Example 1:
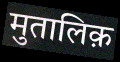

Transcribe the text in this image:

मुतालिक़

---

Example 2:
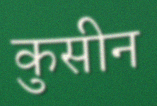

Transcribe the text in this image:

कुसीन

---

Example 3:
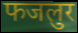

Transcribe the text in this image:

फजलुर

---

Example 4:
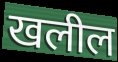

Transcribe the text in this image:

खलील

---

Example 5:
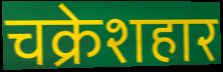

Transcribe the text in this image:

चक्रेशहार